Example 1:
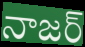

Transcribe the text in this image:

నాజర్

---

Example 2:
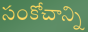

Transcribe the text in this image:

సంకోచాన్ని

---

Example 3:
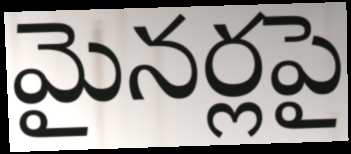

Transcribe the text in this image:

మైనర్లపై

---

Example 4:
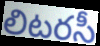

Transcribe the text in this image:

లిటరసీ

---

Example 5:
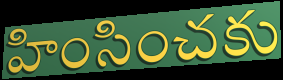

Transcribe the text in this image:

హింసించకు